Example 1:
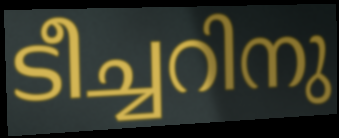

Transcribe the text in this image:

ടീച്ചറിനു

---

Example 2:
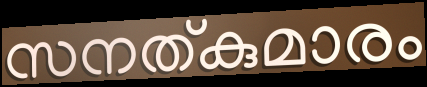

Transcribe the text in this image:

സനത്കുമാരം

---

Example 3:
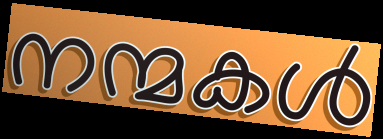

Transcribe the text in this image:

നന്മകൾ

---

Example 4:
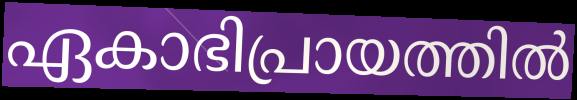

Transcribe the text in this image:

ഏകാഭിപ്രായത്തിൽ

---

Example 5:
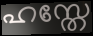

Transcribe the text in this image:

ഹസ്തേ